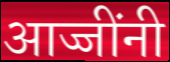
आज्जींनी